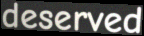
deserved